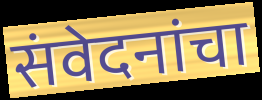
संवेदनांचा